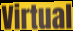
Virtual